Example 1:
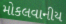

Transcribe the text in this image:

મોકલવાનીય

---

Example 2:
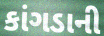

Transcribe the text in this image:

કાંગડાની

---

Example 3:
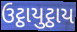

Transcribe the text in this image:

ઉટ્ઠાયુટ્ઠાય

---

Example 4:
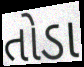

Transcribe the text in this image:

તોડા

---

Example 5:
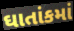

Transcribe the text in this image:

ઘાતાંકમાં